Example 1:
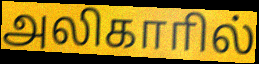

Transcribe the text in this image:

அலிகாரில்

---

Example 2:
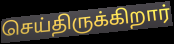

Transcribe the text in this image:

செய்திருக்கிறார்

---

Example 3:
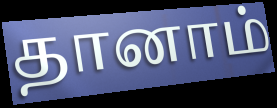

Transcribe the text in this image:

தானாம்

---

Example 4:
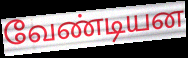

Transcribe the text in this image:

வேண்டியன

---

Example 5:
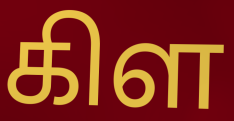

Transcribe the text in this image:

கிள